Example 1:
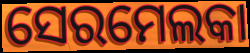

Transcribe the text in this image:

ସେରମେଲକା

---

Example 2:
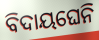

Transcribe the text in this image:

ବିଦାୟଘେନି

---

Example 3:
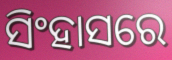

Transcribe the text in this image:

ସିଂହାସରେ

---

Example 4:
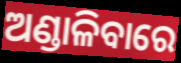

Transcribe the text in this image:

ଅଣ୍ଡାଳିବାରେ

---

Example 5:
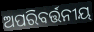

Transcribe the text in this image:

ଅପରିବର୍ତ୍ତନୀୟ